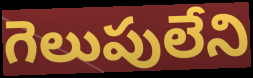
గెలుపులేని